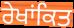
ਰੇਖਾਂਕਿਤ